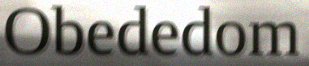
Obededom